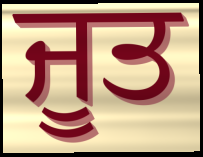
ਜੂਤ